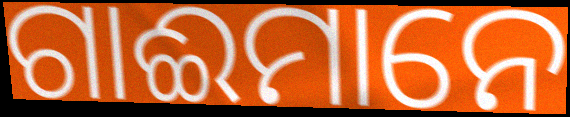
ଗାଈମାନେ